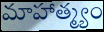
మాహాత్మ్యం